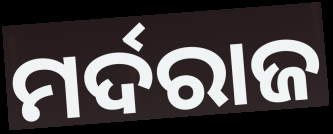
ମର୍ଦରାଜ